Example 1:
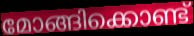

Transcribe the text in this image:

മോങ്ങിക്കൊണ്ട്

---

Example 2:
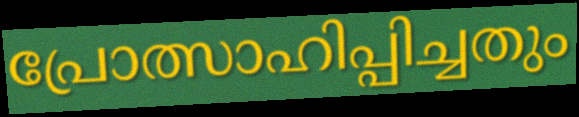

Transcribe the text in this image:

പ്രോത്സാഹിപ്പിച്ചതും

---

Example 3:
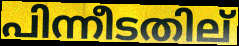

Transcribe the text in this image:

പിന്നീടതില്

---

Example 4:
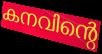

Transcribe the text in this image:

കനവിന്റെ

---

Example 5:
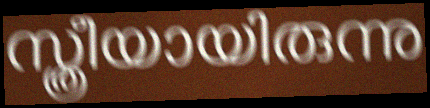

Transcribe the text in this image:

സ്ത്രീയായിരുന്നു